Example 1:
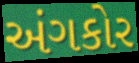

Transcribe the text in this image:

અંગકોર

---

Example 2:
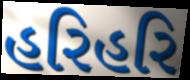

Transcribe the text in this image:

હરિહરિ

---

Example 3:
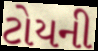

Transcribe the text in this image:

ટોયની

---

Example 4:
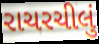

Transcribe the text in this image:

રાચરચીલું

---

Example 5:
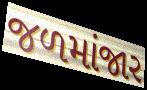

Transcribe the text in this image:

જળમાંજાર